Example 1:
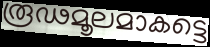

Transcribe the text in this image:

രൂഢമൂലമാകട്ടെ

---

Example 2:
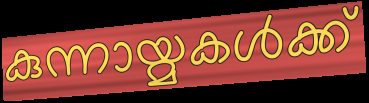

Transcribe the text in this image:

കുന്നായ്മകൾക്ക്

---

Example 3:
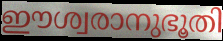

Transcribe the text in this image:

ഈശ്വരാനുഭൂതി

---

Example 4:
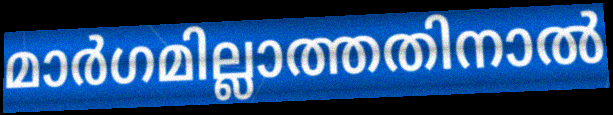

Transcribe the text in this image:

മാർഗമില്ലാത്തതിനാൽ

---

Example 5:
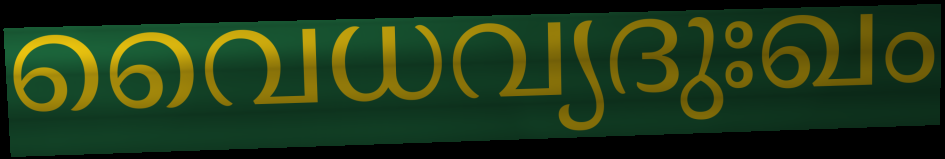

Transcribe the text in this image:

വൈധവ്യദുഃഖം